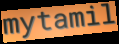
mytamil